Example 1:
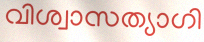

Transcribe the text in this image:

വിശ്വാസത്യാഗി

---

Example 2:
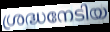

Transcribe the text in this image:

ശ്രദ്ധനേടിയ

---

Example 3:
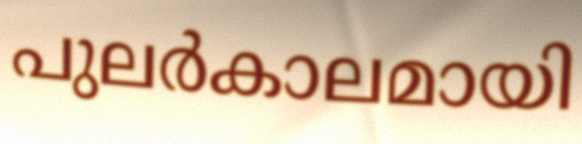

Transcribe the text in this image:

പുലർകാലമായി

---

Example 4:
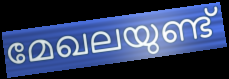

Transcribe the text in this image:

മേഖലയുണ്ട്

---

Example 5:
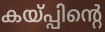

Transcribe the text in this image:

കയ്പ്പിന്റെ